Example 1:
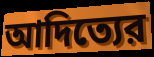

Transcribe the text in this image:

আদিত্যের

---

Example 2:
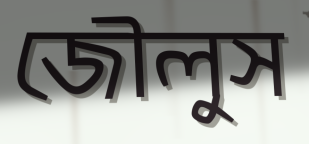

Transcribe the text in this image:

জৌলুস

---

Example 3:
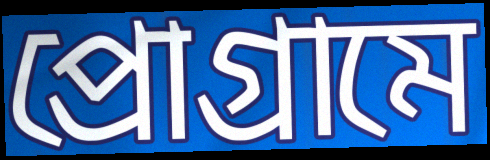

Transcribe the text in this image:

প্রোগ্রামে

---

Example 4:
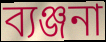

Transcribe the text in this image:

ব্যঞ্জনা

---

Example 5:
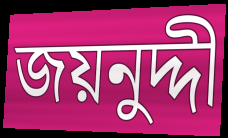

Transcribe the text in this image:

জয়নুদ্দী